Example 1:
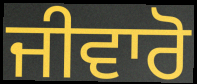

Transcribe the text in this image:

ਜੀਵਾਰੋ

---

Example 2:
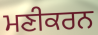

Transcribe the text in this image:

ਮਣੀਕਰਨ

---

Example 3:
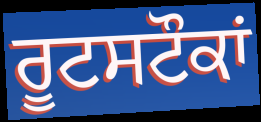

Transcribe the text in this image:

ਰੂਟਸਟੌਕਾਂ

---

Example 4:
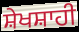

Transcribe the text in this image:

ਸ਼ੇਖਸ਼ਾਹੀ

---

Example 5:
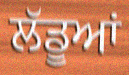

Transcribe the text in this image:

ਲੱਡੂਆਂ